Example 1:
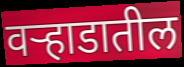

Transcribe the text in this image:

वऱ्हाडातील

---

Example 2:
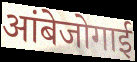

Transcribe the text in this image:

आंबेजोगाई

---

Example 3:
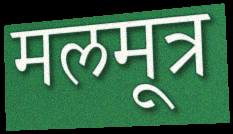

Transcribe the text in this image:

मलमूत्र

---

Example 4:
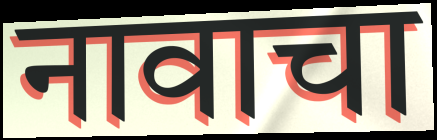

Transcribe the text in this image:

नावाचा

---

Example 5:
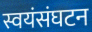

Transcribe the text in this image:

स्वयंसंघटन